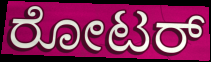
ರೋಟರ್